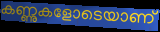
കണ്ണുകളോടെയാണ്